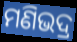
ମଣିଭଦ୍ର